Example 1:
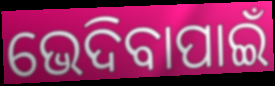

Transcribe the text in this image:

ଭେଦିବାପାଇଁ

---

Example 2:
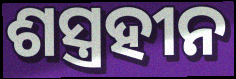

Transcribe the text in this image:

ଶସ୍ତ୍ରହୀନ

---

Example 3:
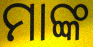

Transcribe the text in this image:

ମାଙ୍କ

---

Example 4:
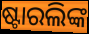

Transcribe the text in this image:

ଷ୍ଟାରଲିଙ୍କ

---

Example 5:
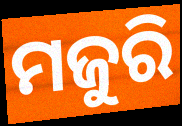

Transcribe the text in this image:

ମଜୁରି